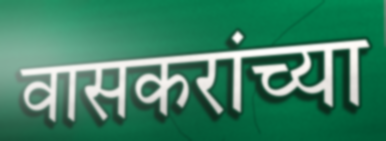
वासकरांच्या